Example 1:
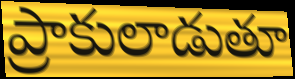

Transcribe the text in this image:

ప్రాకులాడుతూ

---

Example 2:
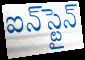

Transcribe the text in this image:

ఐన్‌స్టైన్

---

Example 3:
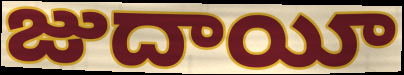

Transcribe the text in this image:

జుదాయీ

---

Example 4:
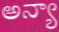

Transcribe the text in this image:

అన్యా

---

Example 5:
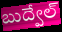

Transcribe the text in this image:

బుద్వేల్